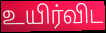
உயிர்விட